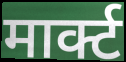
मार्क्ट